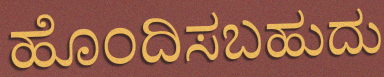
ಹೊಂದಿಸಬಹುದು